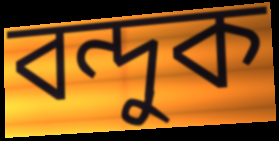
বন্দুক